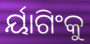
ର୍ୟାଗିଂକୁ